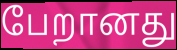
பேறானது